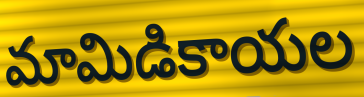
మామిడికాయల